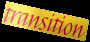
transition